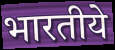
भारतीये